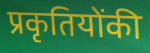
प्रकृतियोंकी